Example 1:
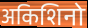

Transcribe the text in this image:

अकिशिनो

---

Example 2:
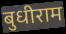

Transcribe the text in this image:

बुधीराम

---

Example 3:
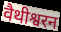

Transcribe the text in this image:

वैथीश्वरन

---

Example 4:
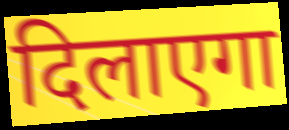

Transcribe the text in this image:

दिलाएगा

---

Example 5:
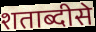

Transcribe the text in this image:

शताब्दीसे